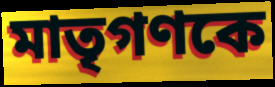
মাতৃগণকে